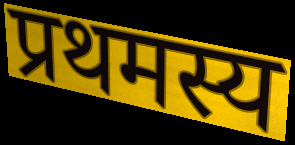
प्रथमस्य